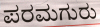
ಪರಮಗುರು